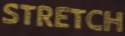
STRETCH